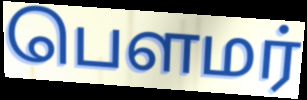
பௌமர்